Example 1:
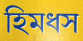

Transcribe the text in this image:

হিমধস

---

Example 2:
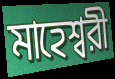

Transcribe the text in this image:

মাহেশ্বরী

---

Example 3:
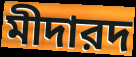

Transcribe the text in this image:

মীদারদ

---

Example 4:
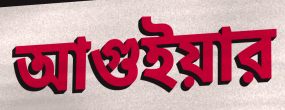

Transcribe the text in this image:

আগুইয়ার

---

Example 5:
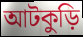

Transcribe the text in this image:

আটকুড়ি